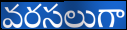
వరసలుగా